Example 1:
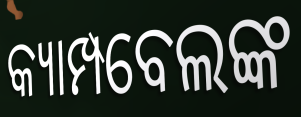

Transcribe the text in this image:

କ୍ୟାମ୍ପବେଲଙ୍କ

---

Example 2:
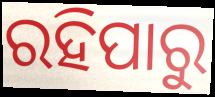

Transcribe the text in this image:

ରହିପାରୁ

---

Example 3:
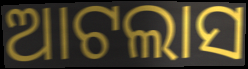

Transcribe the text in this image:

ଆଟଲାସ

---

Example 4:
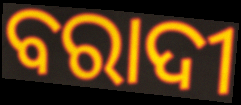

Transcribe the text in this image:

ବରାଦୀ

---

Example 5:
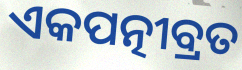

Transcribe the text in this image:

ଏକପତ୍ନୀବ୍ରତ